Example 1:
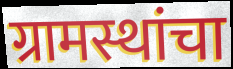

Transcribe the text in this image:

ग्रामस्थांचा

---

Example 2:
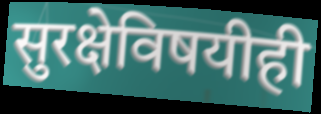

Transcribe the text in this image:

सुरक्षेविषयीही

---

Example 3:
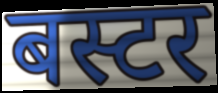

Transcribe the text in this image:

बस्टर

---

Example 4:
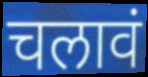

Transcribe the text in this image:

चलावं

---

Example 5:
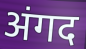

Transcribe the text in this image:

अंगद